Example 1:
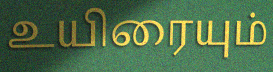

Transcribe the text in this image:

உயிரையும்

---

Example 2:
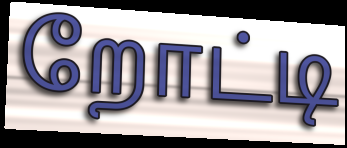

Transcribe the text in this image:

றோட்டி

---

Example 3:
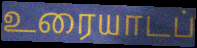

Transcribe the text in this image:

உரையாடப்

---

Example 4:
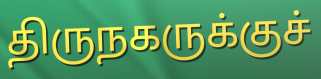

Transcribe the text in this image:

திருநகருக்குச்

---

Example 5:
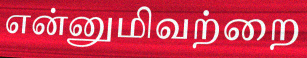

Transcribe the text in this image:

என்னுமிவற்றை